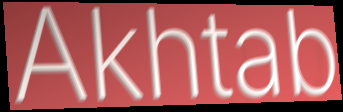
Akhtab